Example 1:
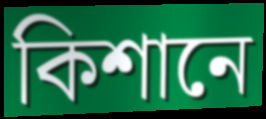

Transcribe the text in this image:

কিশানে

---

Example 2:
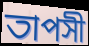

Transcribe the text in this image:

তাপসী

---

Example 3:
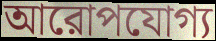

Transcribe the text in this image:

আরোপযোগ্য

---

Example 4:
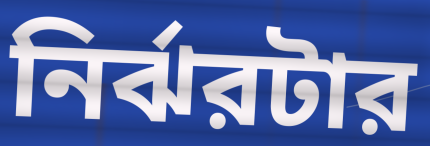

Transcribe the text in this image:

নির্ঝরটার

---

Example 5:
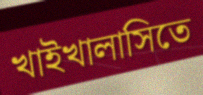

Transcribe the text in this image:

খাইখালাসিতে